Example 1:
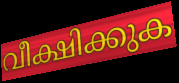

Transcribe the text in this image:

വീക്ഷിക്കുക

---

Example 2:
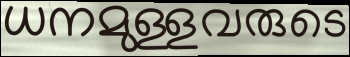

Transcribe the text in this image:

ധനമുള്ളവരുടെ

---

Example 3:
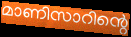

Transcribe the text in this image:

മാണിസാറിന്റെ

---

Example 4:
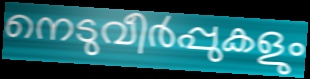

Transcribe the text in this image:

നെടുവീർപ്പുകളും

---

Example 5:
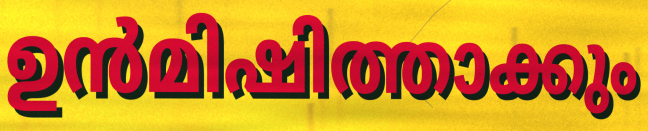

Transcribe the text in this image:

ഉൻമിഷിത്താക്കും